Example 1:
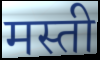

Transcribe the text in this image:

मस्ती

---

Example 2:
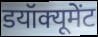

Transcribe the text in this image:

डयॉक्‍यूमेंट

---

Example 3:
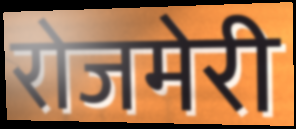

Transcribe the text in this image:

रोजमेरी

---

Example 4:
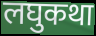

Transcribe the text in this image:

लघुकथा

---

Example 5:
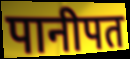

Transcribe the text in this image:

पानीपत